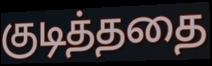
குடித்ததை